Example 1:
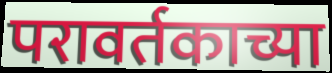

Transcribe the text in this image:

परावर्तकाच्या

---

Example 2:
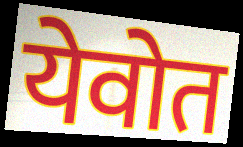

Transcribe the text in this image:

येवोत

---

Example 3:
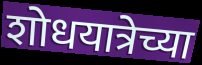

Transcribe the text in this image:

शोधयात्रेच्या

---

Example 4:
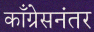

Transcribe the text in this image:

काँग्रेसनंतर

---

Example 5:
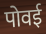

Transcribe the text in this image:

पोवई